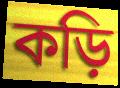
কড়ি